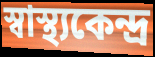
স্বাস্থ্যকেন্দ্ৰ